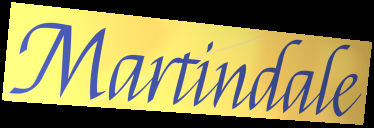
Martindale